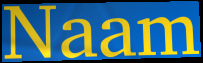
Naam